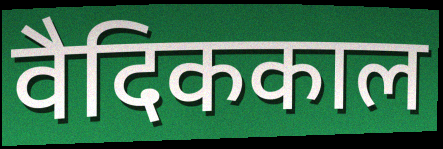
वैदिककाल